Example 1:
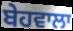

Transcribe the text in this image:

ਬੇਹਵਾਲਾ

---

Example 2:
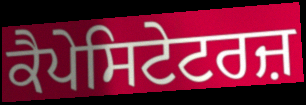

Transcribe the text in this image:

ਕੈਪੇਸਿਟੇਟਰਜ਼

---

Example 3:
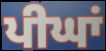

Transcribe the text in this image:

ਪੀਘਾਂ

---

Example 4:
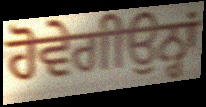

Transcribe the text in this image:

ਹੋਵੇਗੀਉਨ੍ਹਾਂ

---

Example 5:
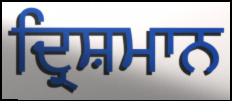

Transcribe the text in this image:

ਦ੍ਰਿਸ਼ਮਾਨ